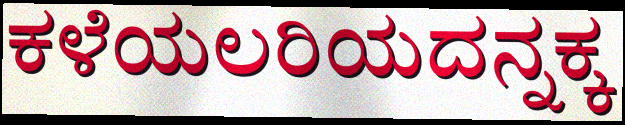
ಕಳೆಯಲರಿಯದನ್ನಕ್ಕ